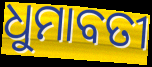
ଧୁମାବତୀ